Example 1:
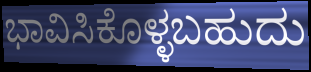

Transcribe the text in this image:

ಭಾವಿಸಿಕೊಳ್ಳಬಹುದು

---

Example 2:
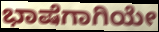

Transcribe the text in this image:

ಭಾಷೆಗಾಗಿಯೇ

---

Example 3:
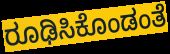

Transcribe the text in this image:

ರೂಢಿಸಿಕೊಂಡಂತೆ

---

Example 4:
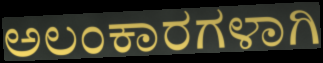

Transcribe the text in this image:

ಅಲಂಕಾರಗಳಾಗಿ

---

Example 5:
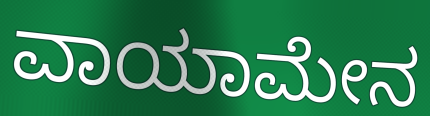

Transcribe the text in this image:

ವಾಯಾಮೇನ